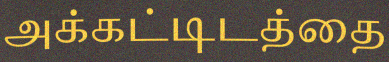
அக்கட்டிடத்தை